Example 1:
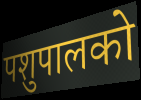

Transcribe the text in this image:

पशुपालको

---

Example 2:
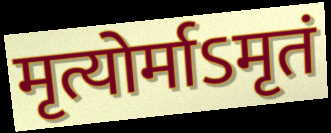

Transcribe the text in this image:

मृत्योर्माऽमृतं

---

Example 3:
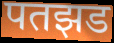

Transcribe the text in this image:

पतझड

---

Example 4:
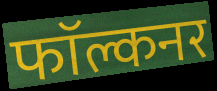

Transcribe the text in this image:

फॉल्कनर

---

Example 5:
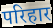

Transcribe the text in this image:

परिहार